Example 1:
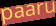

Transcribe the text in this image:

paaru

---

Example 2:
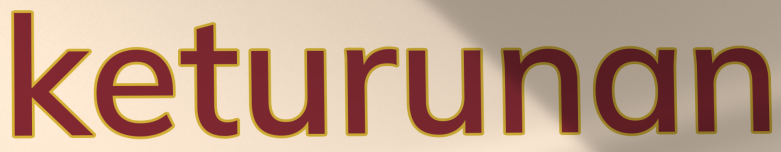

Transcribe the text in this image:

keturunan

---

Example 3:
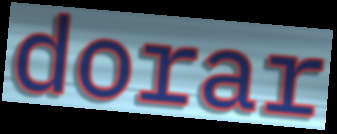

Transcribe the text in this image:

dorar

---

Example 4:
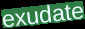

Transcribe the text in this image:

exudate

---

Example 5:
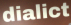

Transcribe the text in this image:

dialict